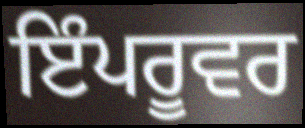
ਇੰਪਰੂਵਰ